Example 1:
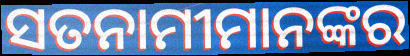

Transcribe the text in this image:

ସତନାମୀମାନଙ୍କର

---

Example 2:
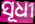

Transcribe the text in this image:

ସୂଧୀ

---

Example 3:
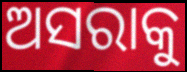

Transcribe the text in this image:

ଅସରାକୁ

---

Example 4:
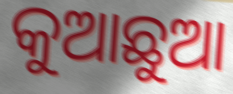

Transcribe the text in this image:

କୁଆଛୁଆ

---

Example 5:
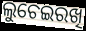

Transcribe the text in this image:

ଲୁଚେଇରଖି